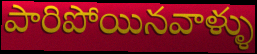
పారిపోయినవాళ్ళు